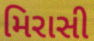
મિરાસી